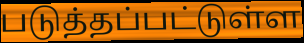
படுத்தப்பட்டுள்ள